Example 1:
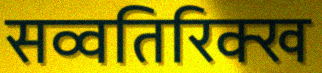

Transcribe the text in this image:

सव्वतिरिक्ख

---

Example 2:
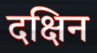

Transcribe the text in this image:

दक्षिन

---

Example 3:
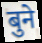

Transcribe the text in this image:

बुने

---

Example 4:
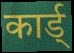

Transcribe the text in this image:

कार्ड्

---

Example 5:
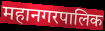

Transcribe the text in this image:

महानगरपालिक